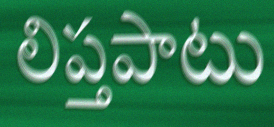
లిప్తపాటు